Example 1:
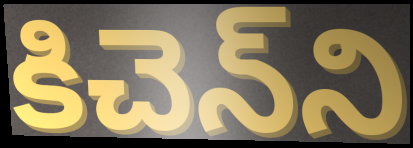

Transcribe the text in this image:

కిచెన్‌ని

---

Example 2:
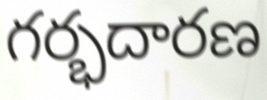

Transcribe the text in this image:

గర్భదారణ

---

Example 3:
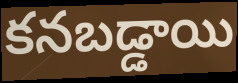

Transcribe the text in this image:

కనబడ్డాయి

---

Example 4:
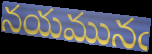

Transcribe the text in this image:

నయమునఁ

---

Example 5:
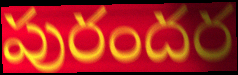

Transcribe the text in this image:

పురందర